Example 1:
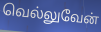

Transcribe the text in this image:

வெல்லுவேன்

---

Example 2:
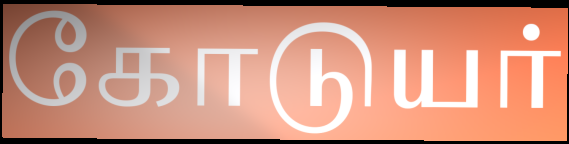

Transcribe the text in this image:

கோடுயர்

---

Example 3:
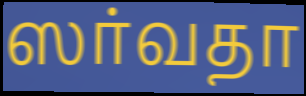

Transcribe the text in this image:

ஸர்வதா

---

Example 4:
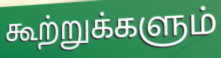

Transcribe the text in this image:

கூற்றுக்களும்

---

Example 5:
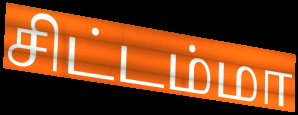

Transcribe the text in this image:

சிட்டம்மா